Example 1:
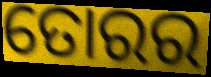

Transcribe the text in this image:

ତୋରର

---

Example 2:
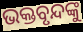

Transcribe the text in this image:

ଭକ୍ତବୃନ୍ଦଙ୍କୁ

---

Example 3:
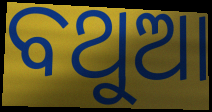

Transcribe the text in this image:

ବଥୁଆ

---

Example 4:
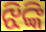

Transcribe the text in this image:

ଝିଙ୍କି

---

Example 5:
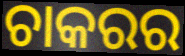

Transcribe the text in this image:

ଚାକରର